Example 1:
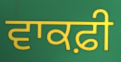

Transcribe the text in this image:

ਵਾਕਫ਼ੀ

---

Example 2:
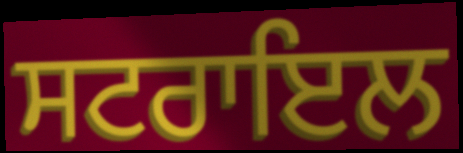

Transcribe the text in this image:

ਸਟਰਾਇਲ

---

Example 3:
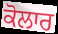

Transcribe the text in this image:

ਕੋਲਾਰ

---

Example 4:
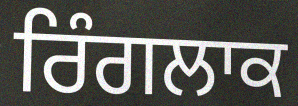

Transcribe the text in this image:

ਰਿੰਗਲਾਕ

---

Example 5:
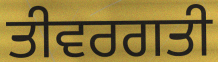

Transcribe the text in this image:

ਤੀਵਰਗਤੀ